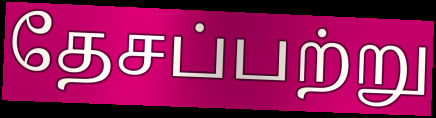
தேசப்பற்று